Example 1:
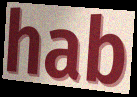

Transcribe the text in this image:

hab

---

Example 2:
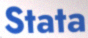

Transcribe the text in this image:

Stata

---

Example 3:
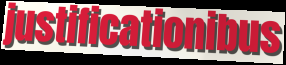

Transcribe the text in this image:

justificationibus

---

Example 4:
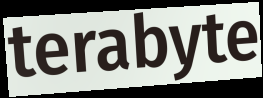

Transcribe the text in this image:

terabyte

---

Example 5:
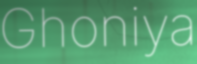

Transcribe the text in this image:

Ghoniya